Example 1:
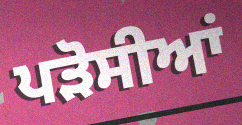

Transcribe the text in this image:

ਪੜੋਸੀਆਂ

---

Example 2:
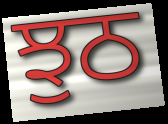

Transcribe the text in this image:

ਝੁਠ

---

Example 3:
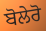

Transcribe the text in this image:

ਬੋਲੇਰੋ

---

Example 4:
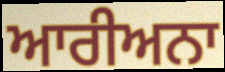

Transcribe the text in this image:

ਆਰੀਅਨਾ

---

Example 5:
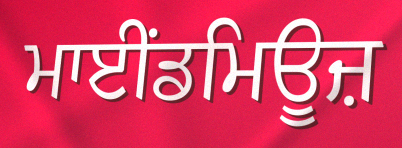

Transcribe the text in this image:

ਮਾਈਂਡਮਿਊਜ਼